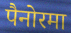
पैनोरमा